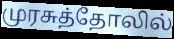
முரசுத்தோலில்